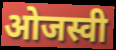
ओजस्वी